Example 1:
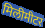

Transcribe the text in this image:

मिलीमीटर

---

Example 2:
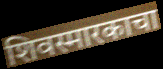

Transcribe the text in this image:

शिवस्मारकाचा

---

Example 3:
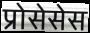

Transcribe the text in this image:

प्रोसेसेस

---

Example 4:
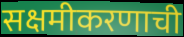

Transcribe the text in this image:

सक्षमीकरणाची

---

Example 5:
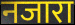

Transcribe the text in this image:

नजारा